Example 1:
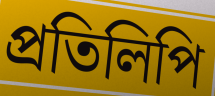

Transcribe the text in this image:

প্ৰতিলিপি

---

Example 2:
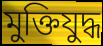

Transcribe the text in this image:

মুক্তিযুদ্ধ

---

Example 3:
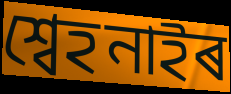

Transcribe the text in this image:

শ্বেহনাইৰ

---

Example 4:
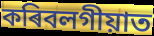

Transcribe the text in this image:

কৰিবলগীয়াত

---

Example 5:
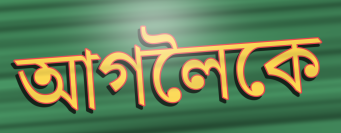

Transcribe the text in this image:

আগলৈকে